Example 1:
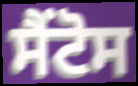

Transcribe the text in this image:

ਸੈਂਟੋਸ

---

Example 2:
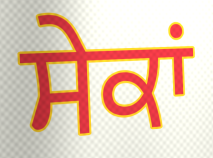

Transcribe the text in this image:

ਸੇਕਾਂ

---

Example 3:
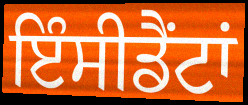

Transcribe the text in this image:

ਇੰਸੀਡੈਂਟਾਂ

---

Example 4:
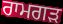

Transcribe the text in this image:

ਰਾਮਗੜ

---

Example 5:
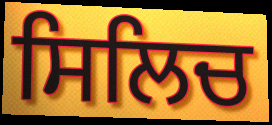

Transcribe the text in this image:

ਸਿਲਿਚ